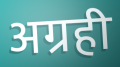
अग्रही